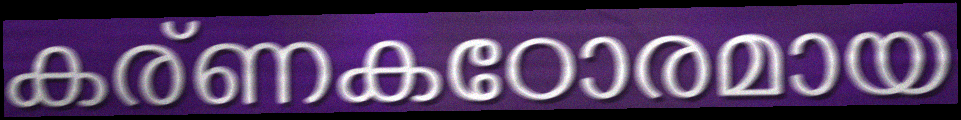
കര്ണകഠോരമായ